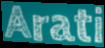
Arati